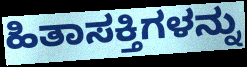
ಹಿತಾಸಕ್ತಿಗಳನ್ನು